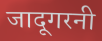
जादूगरनी